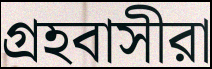
গ্রহবাসীরা